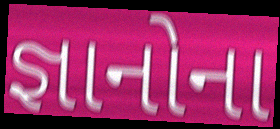
જ્ઞાનોના